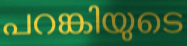
പറങ്കിയുടെ